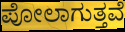
ಪೋಲಾಗುತ್ತವೆ